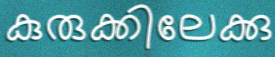
കുരുക്കിലേക്കു